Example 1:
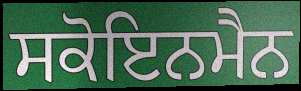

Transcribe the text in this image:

ਸਕੋਇਨਮੈਨ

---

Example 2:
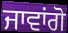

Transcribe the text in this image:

ਜਾਵਾਂਗੋ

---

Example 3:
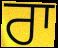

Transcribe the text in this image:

ਰਾ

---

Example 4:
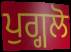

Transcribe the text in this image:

ਪੁਗ੍ਗਲੋ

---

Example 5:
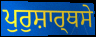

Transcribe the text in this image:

ਪੁਰੁਸ਼ਾਰ੍ਥਸੇ